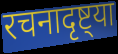
रचनादृष्ट्या